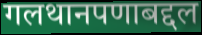
गलथानपणाबद्दल